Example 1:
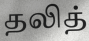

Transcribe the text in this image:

தலித்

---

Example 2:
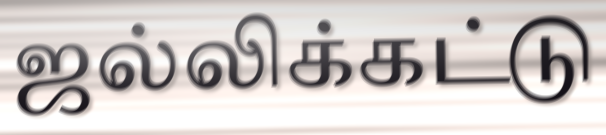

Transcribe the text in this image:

ஜல்லிக்கட்டு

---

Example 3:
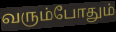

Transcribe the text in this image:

வரும்போதும்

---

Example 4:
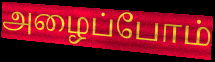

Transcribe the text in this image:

அழைப்போம்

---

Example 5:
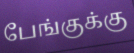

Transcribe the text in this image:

பேங்குக்கு